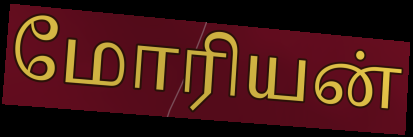
மோரியன்